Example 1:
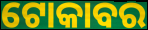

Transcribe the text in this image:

ଟୋକାବର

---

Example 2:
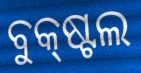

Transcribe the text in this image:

ବୁକ୍‌ଷ୍ଟଲ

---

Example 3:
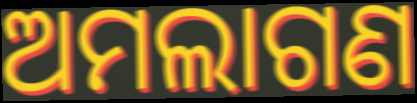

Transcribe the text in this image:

ଅମଲାଗଣ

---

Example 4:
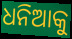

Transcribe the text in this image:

ଧନିଆକୁ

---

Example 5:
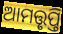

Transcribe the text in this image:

ଆମତ୍ତୃପ୍ତି